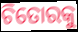
ଚିତୋରକୁ